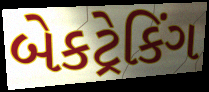
બેકટ્રેકિંગ